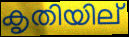
കൃതിയില്